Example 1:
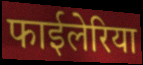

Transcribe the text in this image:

फाईलेरिया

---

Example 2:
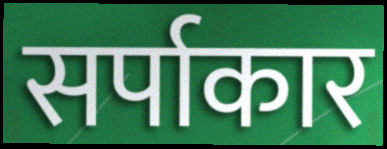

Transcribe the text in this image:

सर्पाकार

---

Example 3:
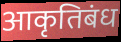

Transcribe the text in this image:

आकृतिबंध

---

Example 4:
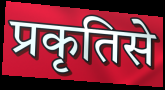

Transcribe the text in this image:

प्रकृतिसे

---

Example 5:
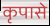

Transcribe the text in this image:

कृपासे